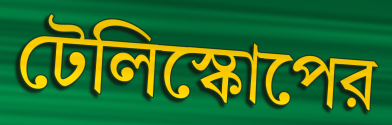
টেলিস্কোপের